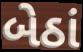
બેઠાં